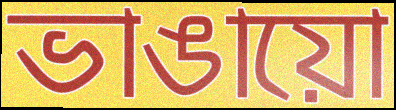
ভাঙায়ো